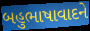
બહુભાષાવાદને